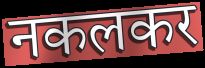
नकलकर